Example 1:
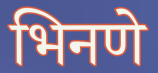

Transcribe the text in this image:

भिनणे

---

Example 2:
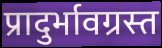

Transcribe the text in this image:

प्रादुर्भावग्रस्त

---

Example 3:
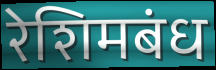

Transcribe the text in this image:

रेशिमबंध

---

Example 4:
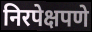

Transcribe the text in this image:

निरपेक्षपणे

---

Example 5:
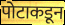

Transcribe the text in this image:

पोटाकडून